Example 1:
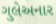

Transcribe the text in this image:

ગુલેઅનાર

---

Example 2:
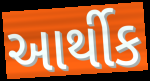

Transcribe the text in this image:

આર્થીક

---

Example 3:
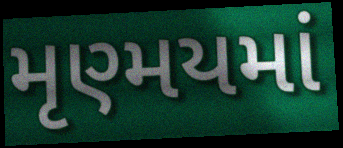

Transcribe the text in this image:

મૃણ્મયમાં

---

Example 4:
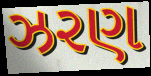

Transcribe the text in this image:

ઝરણ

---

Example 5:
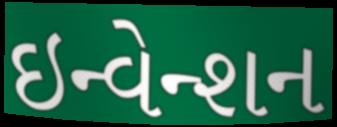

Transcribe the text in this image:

ઇન્વેન્શન